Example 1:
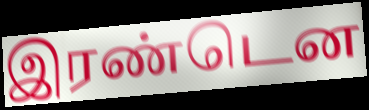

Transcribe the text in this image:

இரண்டென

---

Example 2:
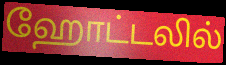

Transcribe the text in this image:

ஹோட்டலில்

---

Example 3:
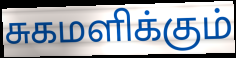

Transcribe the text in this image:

சுகமளிக்கும்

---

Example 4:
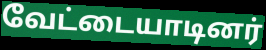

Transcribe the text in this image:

வேட்டையாடினர்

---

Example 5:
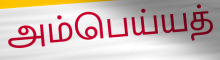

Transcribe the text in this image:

அம்பெய்யத்